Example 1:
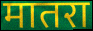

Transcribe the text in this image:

मातरा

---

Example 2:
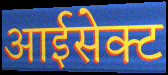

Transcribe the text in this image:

आईसेक्ट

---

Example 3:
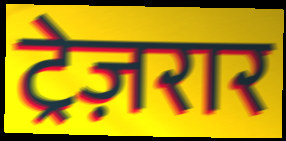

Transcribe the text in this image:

ट्रेज़रार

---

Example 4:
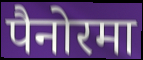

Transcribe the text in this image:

पैनोरमा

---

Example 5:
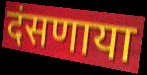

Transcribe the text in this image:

दंसणाया